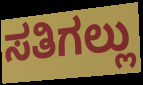
ಸತಿಗಲ್ಲು